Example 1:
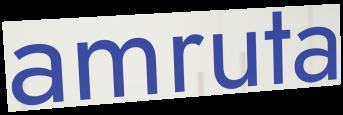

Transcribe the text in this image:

amruta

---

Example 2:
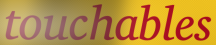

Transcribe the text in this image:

touchables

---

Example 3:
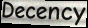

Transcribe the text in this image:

Decency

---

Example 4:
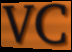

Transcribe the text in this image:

VC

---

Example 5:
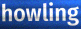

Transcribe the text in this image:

howling